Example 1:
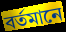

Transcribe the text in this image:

বৰ্তমানে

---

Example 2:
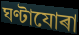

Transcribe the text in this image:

ঘণ্টাযোৰা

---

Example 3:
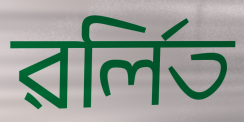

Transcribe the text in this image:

ৱৰ্লিত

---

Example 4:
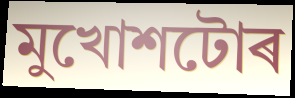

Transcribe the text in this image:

মুখোশটোৰ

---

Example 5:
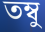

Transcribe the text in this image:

তম্বু